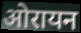
ओरायन